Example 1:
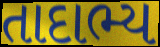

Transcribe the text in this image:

તાદાભ્ય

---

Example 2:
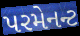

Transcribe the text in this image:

પરમેનન્ટ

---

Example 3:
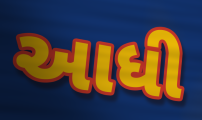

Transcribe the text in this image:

આધી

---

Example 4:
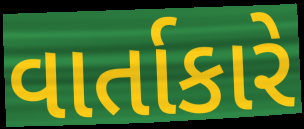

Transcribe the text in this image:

વાર્તાકારે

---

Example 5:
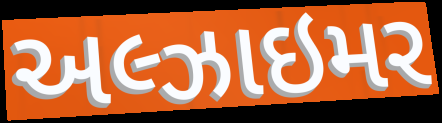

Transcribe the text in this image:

અલ્ઝાઇમર